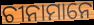
ଚୀନାମାନେ